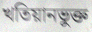
খতিয়ানভুক্ত